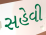
સહેવી